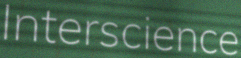
Interscience